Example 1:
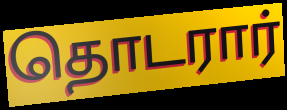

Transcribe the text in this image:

தொடரார்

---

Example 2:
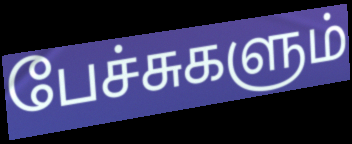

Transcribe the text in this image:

பேச்சுகளும்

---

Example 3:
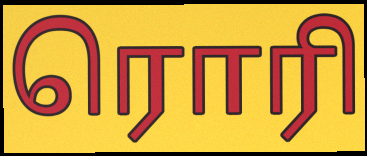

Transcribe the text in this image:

ரொரி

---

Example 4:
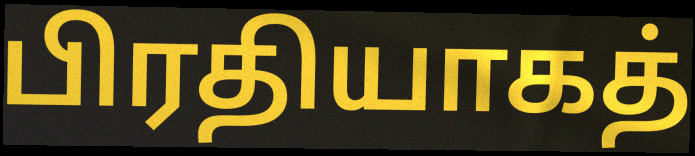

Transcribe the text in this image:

பிரதியாகத்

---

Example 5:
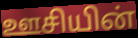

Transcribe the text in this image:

ஊசியின்